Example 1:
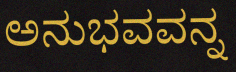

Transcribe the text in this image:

ಅನುಭವವನ್ನ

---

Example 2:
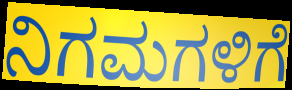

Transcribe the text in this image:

ನಿಗಮಗಳಿಗೆ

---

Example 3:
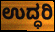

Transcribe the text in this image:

ಉದ್ಧರಿ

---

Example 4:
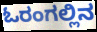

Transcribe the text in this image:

ಓರಂಗಲ್ಲಿನ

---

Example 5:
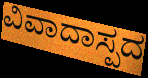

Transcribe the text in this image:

ವಿವಾದಾಸ್ಪದ